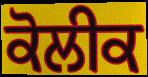
ਕੋਲੀਕ